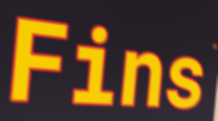
Fins